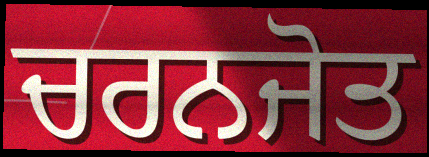
ਚਰਨਜੋਤ